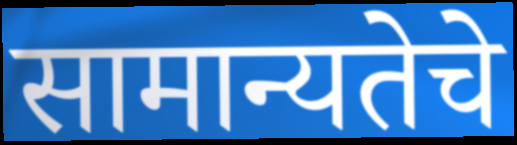
सामान्यतेचे